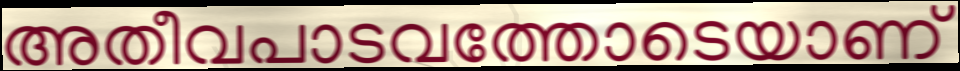
അതീവപാടവത്തോടെയാണ്